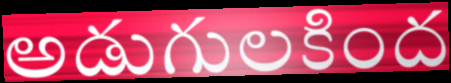
అడుగులకింద